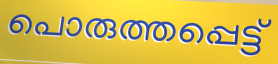
പൊരുത്തപ്പെട്ട്